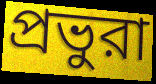
প্রভুরা